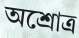
অশ্রোত্র